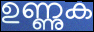
ഉണ്ണുക